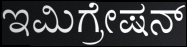
ಇಮಿಗ್ರೇಷನ್